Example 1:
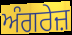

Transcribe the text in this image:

ਅੰਗਰੇਜ਼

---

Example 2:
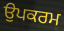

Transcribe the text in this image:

ਉਪਕਰਮ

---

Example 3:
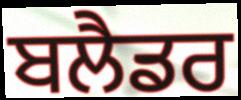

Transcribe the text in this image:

ਬਲੈਡਰ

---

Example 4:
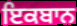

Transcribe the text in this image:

ਇਕਬਾਨ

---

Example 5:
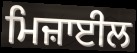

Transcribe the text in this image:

ਮਿਜ਼ਾਈਲ